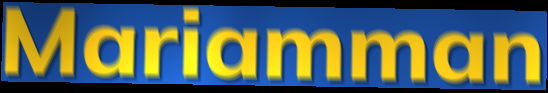
Mariamman